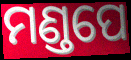
ମଣ୍ଡପେ